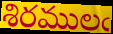
శిరములఁ